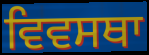
ਵਿਵਸਥਾ